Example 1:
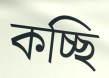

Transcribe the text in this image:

কচ্ছি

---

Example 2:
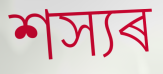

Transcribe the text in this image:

শস্যৰ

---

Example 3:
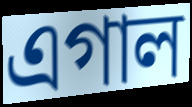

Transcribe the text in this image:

এগাল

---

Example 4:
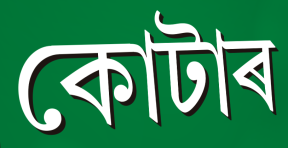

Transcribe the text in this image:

কোটাৰ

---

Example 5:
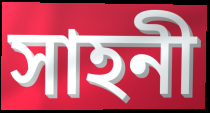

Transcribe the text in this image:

সাহনী